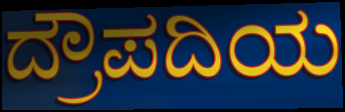
ದ್ರೌಪದಿಯ